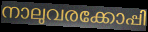
നാലുവരക്കോപ്പി